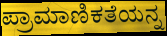
ಪ್ರಾಮಾಣಿಕತೆಯನ್ನ